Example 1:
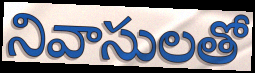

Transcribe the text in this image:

నివాసులతో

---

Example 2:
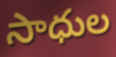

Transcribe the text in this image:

సాధుల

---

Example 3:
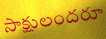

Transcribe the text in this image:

సాక్షులందరూ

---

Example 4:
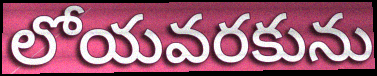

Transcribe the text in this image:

లోయవరకును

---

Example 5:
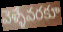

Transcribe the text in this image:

వెళ్ళేవరకూ